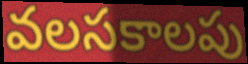
వలసకాలపు